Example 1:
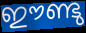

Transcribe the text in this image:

ഈണ്ടു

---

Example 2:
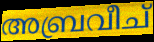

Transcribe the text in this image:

അബ്രവീച്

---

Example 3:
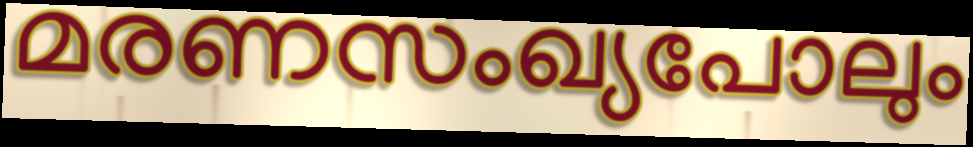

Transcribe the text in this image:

മരണസംഖ്യപോലും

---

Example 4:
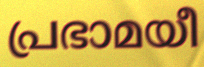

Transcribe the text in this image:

പ്രഭാമയീ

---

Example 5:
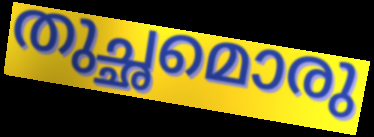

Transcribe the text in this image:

തുച്ഛമൊരു